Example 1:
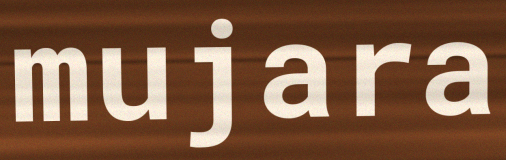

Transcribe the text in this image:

mujara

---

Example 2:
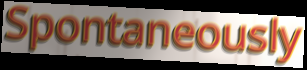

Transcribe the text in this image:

Spontaneously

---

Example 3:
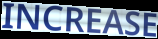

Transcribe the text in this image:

INCREASE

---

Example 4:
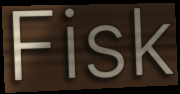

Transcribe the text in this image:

Fisk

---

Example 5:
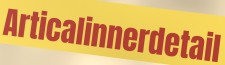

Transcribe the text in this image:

Articalinnerdetail